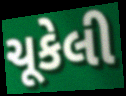
ચૂકેલી